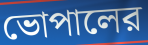
ভোপালের